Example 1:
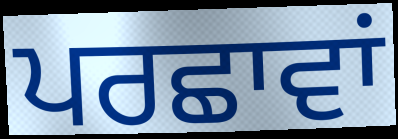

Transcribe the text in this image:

ਪਰਛਾਵਾਂ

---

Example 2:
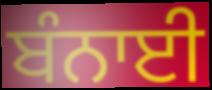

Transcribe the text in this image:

ਬੰਨਾਈ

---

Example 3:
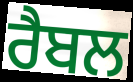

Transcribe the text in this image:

ਰੈਬਲ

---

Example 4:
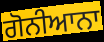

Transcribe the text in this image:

ਗੋਨੀਆਨਾ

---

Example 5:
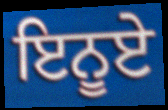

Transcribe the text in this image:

ਇਨੂਏ